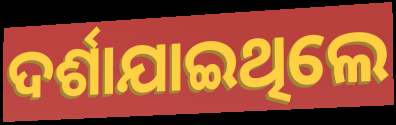
ଦର୍ଶାଯାଇଥିଲେ